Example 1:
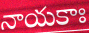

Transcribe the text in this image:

నాయకాః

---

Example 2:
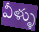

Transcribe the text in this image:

వీళ్ళు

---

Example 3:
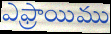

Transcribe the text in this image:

ఎఫ్రాయిము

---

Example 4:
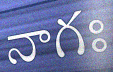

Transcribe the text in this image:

నాగః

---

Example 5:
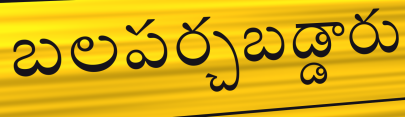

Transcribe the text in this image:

బలపర్చబడ్డారు